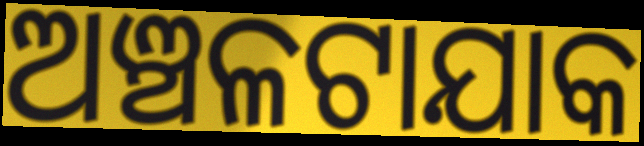
ଅଞ୍ଚଳଟାଯାକ